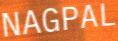
NAGPAL